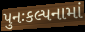
પુનઃકલ્પનામાં